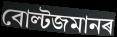
বোল্টজমানৰ